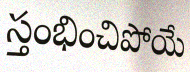
స్తంభించిపోయే